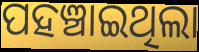
ପହଞ୍ଚାଇଥିଲା